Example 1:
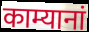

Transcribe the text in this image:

काम्यानां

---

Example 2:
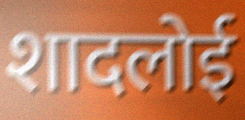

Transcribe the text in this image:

शादलोई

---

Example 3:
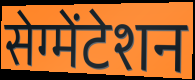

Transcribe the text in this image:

सेग्मेंटेशन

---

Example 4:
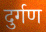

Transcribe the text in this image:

दुर्गण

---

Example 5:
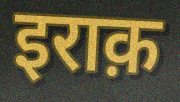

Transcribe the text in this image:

इराक़